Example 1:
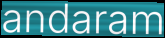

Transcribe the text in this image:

andaram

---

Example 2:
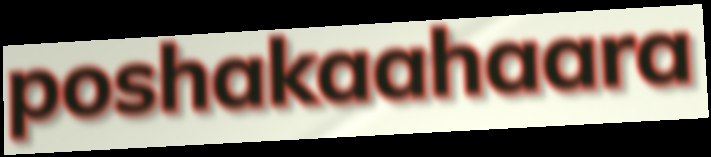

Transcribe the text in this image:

poshakaahaara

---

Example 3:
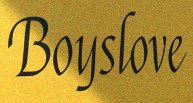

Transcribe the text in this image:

Boyslove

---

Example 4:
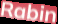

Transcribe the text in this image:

Rabin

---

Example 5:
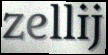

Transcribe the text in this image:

zellij